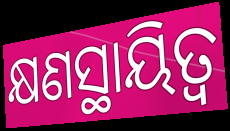
କ୍ଷଣସ୍ଥାୟିତ୍ୱ